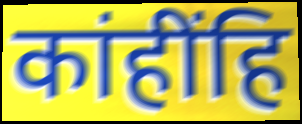
कांहींहि